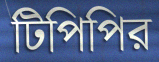
টিপিপির